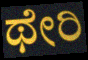
ಥೇರಿ